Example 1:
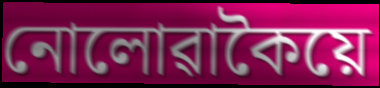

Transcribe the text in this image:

নোলোৱাকৈয়ে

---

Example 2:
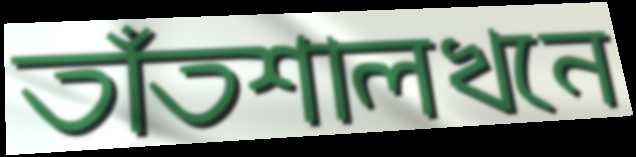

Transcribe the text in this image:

তাঁতশালখনে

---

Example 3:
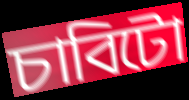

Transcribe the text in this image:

চাবিটো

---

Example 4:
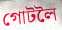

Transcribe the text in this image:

গোটলৈ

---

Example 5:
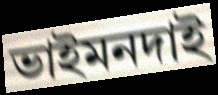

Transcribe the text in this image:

ভাইমনদাই